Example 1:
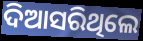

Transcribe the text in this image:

ଦିଆସରିଥିଲେ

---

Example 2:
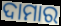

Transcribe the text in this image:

ଦାମାର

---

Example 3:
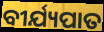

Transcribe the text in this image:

ବୀର୍ଯ୍ୟପାତ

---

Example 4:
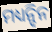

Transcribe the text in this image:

ମଧ୍ୟନ୍ଦିନ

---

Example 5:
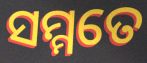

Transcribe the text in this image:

ସମ୍ମତେ